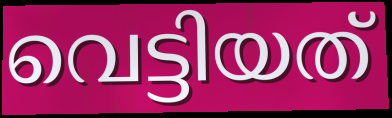
വെട്ടിയത്